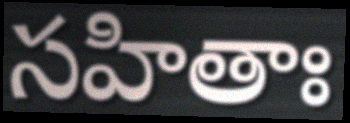
సహితాః